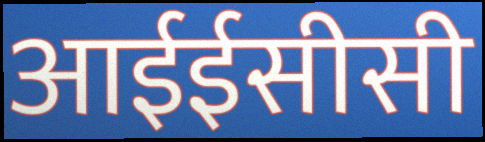
आईईसीसी